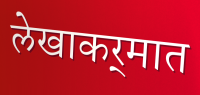
लेखाकर्मात